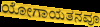
ಯೋಗಾಯತನವೂ